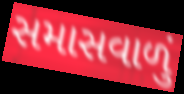
સમાસવાળું